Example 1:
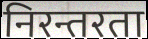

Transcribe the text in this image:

निरन्तरता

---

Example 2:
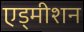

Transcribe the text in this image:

एड्मीशन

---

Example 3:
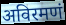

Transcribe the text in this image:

अविरमणं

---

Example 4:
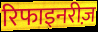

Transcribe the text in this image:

रिफाइनरीज़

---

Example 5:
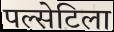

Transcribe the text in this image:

पल्सेटिला